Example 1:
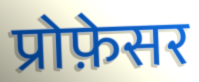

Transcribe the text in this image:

प्रोफ़ेसर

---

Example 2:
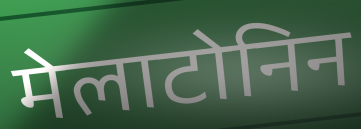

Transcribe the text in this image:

मेलाटोनिन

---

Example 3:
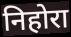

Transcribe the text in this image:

निहोरा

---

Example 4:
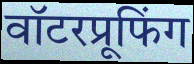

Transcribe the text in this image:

वॉटरप्रूफिंग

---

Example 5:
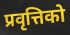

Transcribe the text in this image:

प्रवृत्तिको